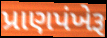
પ્રાણપંખેરૂ